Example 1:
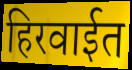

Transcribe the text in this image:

हिरवाईत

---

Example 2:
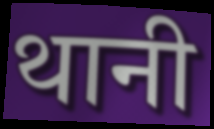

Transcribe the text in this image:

थानी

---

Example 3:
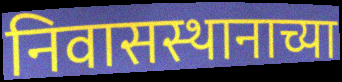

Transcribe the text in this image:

निवासस्थानाच्या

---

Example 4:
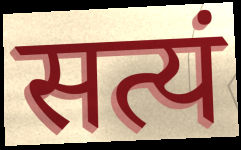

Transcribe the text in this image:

सत्यं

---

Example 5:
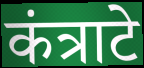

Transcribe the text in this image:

कंत्राटे